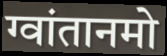
ग्वांतानमो